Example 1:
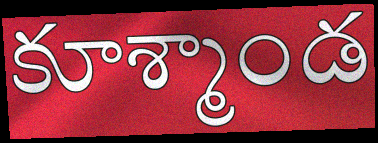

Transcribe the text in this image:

కూశ్మాండ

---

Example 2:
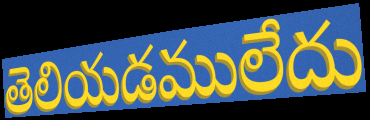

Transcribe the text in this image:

తెలియడములేదు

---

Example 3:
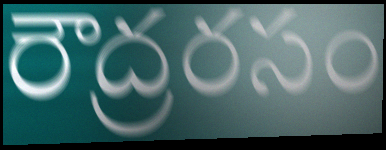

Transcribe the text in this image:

రౌద్రరసం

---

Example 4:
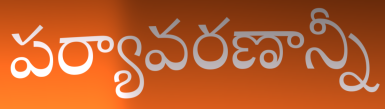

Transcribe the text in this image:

పర్యావరణాన్నీ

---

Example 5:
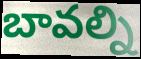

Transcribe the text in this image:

బావల్ని